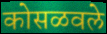
कोसळवले